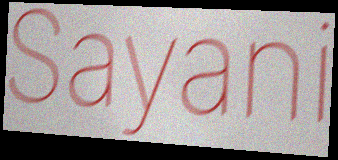
Sayani